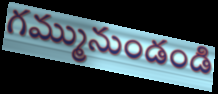
గమ్మునుండండి